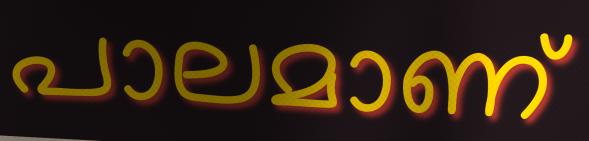
പാലമാണ്